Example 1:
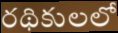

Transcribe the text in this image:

రథికులలో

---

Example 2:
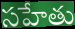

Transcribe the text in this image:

సహేతు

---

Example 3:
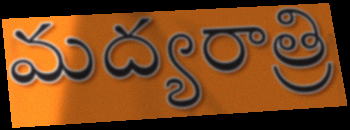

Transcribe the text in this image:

మద్యరాత్రి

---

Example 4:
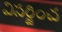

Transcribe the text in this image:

విసర్జించ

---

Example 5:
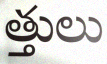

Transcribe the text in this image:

త్తులు